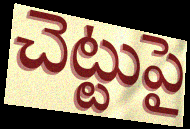
చెట్టుపై